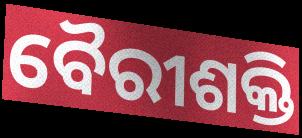
ବୈରୀଶକ୍ତି